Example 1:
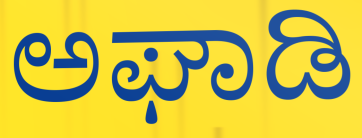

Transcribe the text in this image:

ಅಘಾಡಿ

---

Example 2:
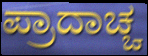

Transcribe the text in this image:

ಪ್ರಾದಾಚ್ಚ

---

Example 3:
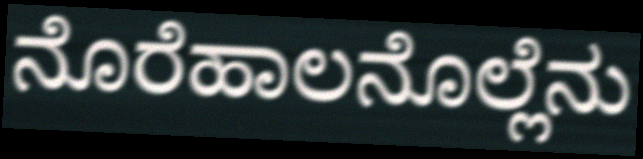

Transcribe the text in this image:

ನೊರೆಹಾಲನೊಲ್ಲೆನು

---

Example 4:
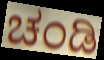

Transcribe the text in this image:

ಚಂಡಿ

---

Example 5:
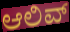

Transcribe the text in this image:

ಆಲಿವ್